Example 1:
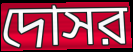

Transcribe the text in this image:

দোসর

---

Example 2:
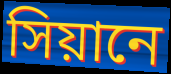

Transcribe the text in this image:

সিয়ানে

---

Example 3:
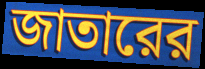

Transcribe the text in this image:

জাতারের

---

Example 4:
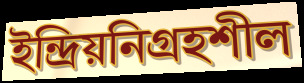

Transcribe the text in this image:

ইন্দ্রিয়নিগ্রহশীল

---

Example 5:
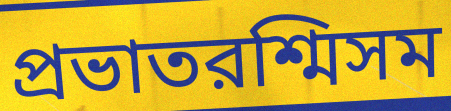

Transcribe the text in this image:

প্রভাতরশ্মিসম